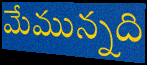
మేమున్నది